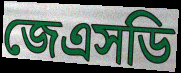
জেএসডি